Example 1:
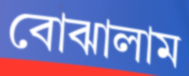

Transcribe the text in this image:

বোঝালাম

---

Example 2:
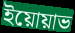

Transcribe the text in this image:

ইয়োয়াভ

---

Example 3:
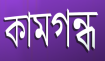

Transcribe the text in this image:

কামগন্ধ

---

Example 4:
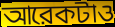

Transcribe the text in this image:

আরেকটাও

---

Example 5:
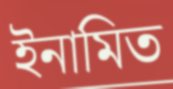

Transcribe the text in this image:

ইনামিত